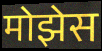
मोझेस